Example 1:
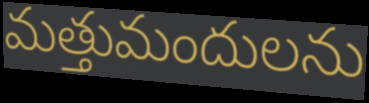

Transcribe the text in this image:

మత్తుమందులను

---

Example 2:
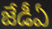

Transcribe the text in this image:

జేడీఏ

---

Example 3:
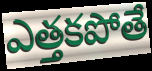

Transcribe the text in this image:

ఎత్తకపోతే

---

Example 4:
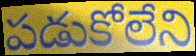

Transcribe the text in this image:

పడుకోలేని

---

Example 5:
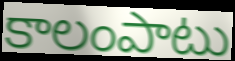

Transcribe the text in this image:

కాలంపాటు